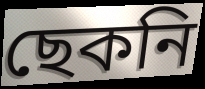
ছেকনি